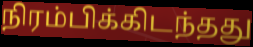
நிரம்பிக்கிடந்தது